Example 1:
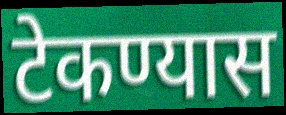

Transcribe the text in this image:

टेकण्यास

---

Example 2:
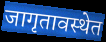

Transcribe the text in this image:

जागृतावस्थेत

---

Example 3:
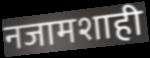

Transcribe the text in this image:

नजामशाही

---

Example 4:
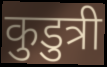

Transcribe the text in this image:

कुडुत्री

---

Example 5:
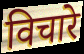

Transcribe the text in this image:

विचारे